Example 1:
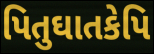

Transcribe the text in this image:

પિતુઘાતકેપિ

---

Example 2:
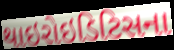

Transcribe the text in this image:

થાઇરોઇડિટિસના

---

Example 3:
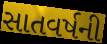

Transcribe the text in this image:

સાતવર્ષની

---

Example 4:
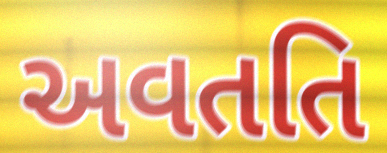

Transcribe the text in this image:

અવતતિ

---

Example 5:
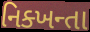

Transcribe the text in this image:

નિક્ખન્તા